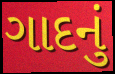
ગાદનું